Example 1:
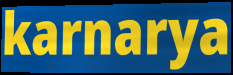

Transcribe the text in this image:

karnarya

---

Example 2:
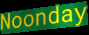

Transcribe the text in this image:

Noonday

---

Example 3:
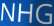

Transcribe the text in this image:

NHG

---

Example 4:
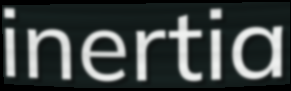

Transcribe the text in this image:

inertia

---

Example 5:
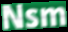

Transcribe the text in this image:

Nsm